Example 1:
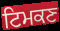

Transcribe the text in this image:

ਟਿਮਕਣ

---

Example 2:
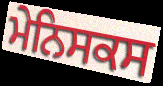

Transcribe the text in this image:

ਮੇਨਿਸਕਸ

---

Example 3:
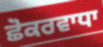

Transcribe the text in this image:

ਛੋਕਰਵਾਧਾ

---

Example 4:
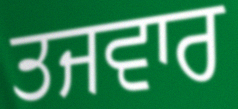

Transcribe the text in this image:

ਤਜਵਾਰ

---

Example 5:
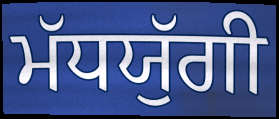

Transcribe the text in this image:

ਮੱਧਯੁੱਗੀ